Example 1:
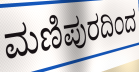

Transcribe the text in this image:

ಮಣಿಪುರದಿಂದ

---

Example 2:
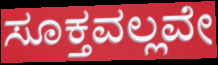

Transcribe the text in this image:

ಸೂಕ್ತವಲ್ಲವೇ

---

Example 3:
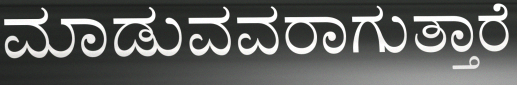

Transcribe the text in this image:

ಮಾಡುವವರಾಗುತ್ತಾರೆ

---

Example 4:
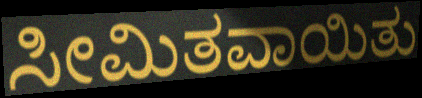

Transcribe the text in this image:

ಸೀಮಿತವಾಯಿತು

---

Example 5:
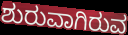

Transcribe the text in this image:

ಶುರುವಾಗಿರುವ